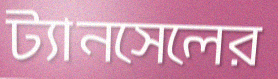
ট্যানসেলের